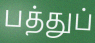
பத்துப்